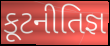
કૂટનીતિજ્ઞ